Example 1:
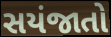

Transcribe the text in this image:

સયંજાતો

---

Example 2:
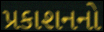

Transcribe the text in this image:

પ્રકાશનનો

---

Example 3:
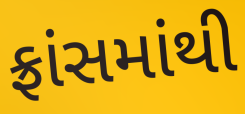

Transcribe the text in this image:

ફ્રાંસમાંથી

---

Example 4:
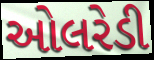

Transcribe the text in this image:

ઓલરેડી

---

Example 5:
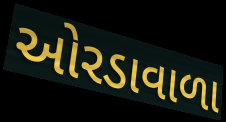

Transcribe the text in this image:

ઓરડાવાળા